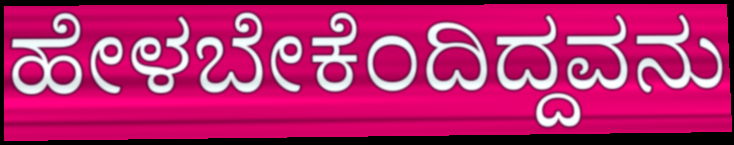
ಹೇಳಬೇಕೆಂದಿದ್ದವನು